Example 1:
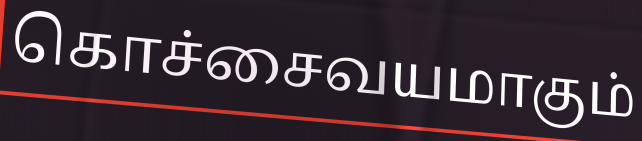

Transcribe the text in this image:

கொச்சைவயமாகும்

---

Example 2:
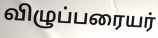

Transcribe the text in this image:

விழுப்பரையர்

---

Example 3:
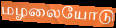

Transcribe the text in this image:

மழலையோடு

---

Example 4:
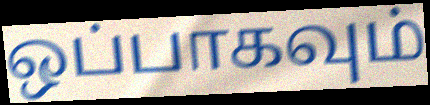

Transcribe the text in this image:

ஒப்பாகவும்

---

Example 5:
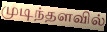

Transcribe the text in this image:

முடிந்தளவில்